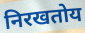
निरखतोय